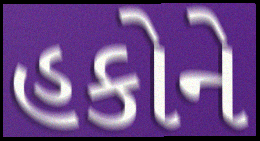
હકોને